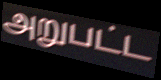
அறுபட்ட